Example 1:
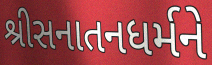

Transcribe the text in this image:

શ્રીસનાતનધર્મને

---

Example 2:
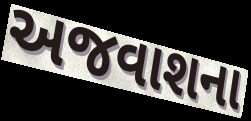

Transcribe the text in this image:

અજવાશના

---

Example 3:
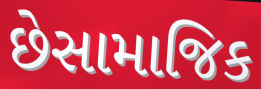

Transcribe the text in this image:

છેસામાજિક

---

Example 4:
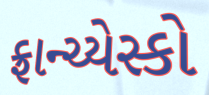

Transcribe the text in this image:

ફ્રાન્ચ્યેસ્કો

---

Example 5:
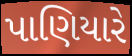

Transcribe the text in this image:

પાણિયારે